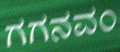
ಗಗನವಂ